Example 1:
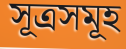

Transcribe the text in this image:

সূত্ৰসমূহ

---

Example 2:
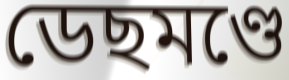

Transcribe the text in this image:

ডেছমণ্ডে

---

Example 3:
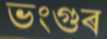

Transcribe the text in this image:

ভংগুৰ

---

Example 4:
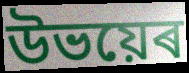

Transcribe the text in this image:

উভয়েৰ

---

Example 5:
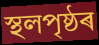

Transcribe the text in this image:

স্থলপৃষ্ঠৰ